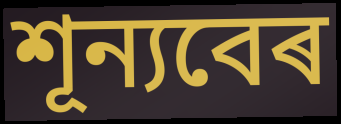
শূন্যবেৰ